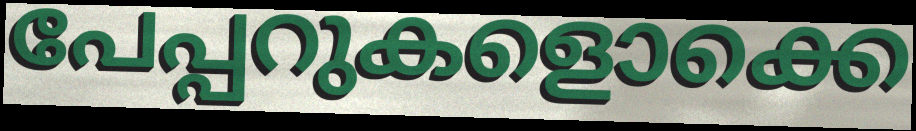
പേപ്പറുകളൊക്കെ